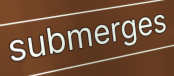
submerges